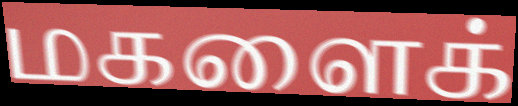
மகளைக்